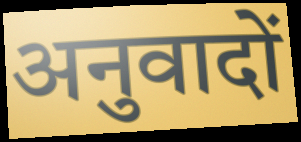
अनुवादों